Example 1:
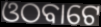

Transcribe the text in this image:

ଓଠବାଟେ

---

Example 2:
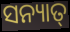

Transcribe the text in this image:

ସନ୍ୟାତ୍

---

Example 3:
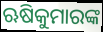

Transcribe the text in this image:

ଋଷିକୁମାରଙ୍କ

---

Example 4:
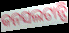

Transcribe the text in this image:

କନସଲଟାନ୍ସି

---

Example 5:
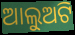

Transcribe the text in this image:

ଆଲୁଅଟି